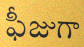
ఫీజుగా